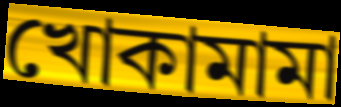
খোকামামা